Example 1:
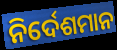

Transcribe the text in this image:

ନିର୍ଦେଶମାନ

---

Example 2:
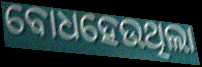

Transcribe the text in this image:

ବୋଧହେଉଥିଲା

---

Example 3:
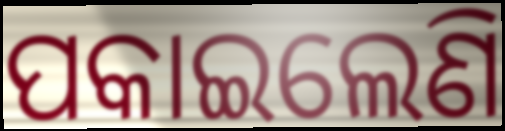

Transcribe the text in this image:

ପକାଇଲେଣି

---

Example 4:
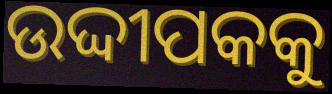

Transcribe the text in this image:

ଉଦ୍ଦୀପକକୁ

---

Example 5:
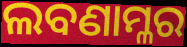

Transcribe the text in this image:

ଲବଣାମ୍ଳର